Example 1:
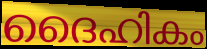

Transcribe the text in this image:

ദൈഹികം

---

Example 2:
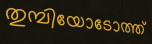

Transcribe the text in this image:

തുമ്പിയോടോത്ത്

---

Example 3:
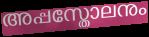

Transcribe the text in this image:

അപ്പസ്തോലനും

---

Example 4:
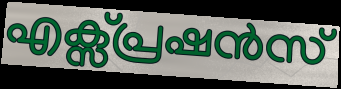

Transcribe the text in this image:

എക്സ്പ്രഷൻസ്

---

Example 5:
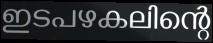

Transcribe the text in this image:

ഇടപഴകലിന്റെ